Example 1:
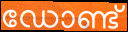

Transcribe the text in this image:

ഡോണ്ട്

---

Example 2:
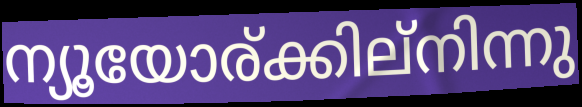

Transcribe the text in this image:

ന്യൂയോര്ക്കില്നിന്നു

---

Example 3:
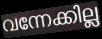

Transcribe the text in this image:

വന്നേക്കില്ല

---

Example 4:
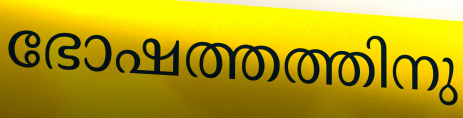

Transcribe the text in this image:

ഭോഷത്തത്തിനു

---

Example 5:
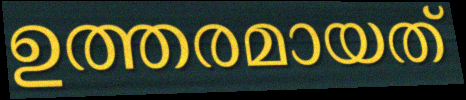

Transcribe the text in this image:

ഉത്തരമായത്